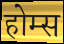
होम्स